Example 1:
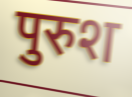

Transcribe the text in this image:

पुरुश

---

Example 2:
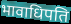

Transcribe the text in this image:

भावाधिपति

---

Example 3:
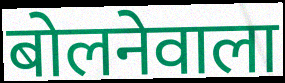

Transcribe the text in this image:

बोलनेवाला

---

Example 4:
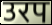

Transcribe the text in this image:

उरप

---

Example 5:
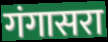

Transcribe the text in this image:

गंगासरा